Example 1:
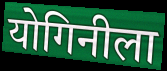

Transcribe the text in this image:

योगिनीला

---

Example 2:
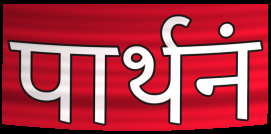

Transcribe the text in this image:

पार्थनं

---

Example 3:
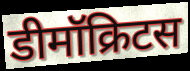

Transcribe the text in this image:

डीमॉक्रिटस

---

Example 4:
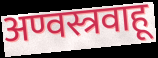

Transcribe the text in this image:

अण्वस्त्रवाहू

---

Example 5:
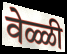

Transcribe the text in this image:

वेळ्ळी